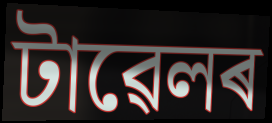
টাৱেলৰ